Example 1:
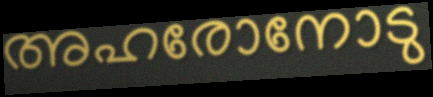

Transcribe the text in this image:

അഹരോനോടു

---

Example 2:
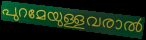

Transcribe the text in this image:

പുറമേയുള്ളവരാൽ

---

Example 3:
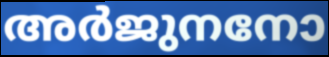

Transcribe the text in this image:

അർജുനനോ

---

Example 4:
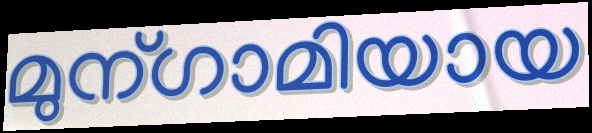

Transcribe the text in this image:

മുന്ഗാമിയായ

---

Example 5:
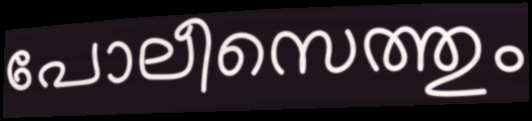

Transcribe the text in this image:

പോലീസെത്തും